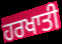
ਹਰਖਾਤੀ